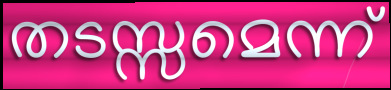
തടസ്സമെന്ന്